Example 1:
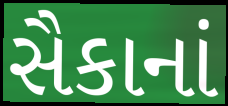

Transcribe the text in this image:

સૈકાનાં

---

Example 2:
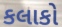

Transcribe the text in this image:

કલાકો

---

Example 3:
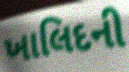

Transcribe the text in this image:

ખાલિદની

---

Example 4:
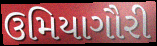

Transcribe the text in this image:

ઉમિયાગૌરી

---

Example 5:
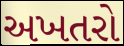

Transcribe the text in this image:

અખતરો